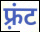
फ़्रंट